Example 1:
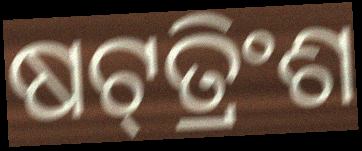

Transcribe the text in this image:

ଷଟ୍‌ତ୍ରିଂଶ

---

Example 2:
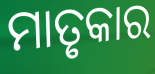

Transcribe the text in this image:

ମାତୃକାର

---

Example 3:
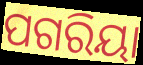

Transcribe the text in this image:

ପଗରିୟା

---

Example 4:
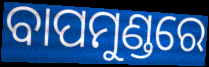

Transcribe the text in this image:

ବାପମୁଣ୍ଡରେ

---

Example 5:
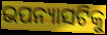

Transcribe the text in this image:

ଭପନ୍ୟାସଟିକୁ